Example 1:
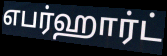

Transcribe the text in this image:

எபர்ஹார்ட்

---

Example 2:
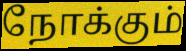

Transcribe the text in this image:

நோக்கும்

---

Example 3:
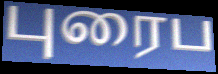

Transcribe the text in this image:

புரைப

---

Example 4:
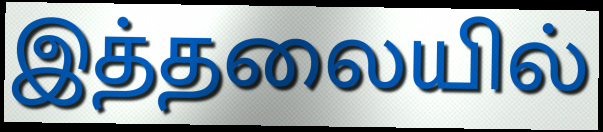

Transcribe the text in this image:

இத்தலையில்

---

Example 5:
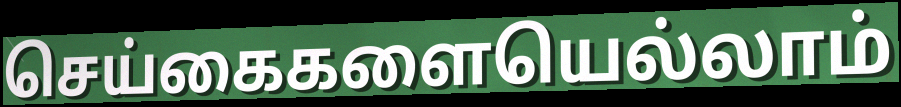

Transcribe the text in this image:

செய்கைகளையெல்லாம்